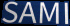
SAMI